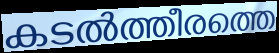
കടൽത്തീരത്തെ